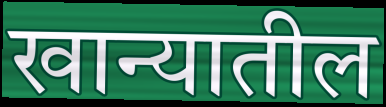
खान्यातील